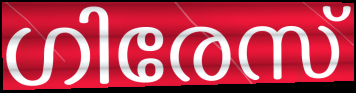
ഗിരേസ്